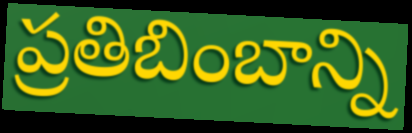
ప్రతిబింబాన్ని